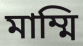
মাম্মি